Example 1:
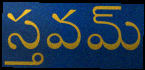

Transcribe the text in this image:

స్తవమ్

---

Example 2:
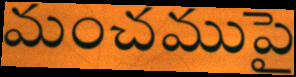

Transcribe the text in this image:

మంచముపై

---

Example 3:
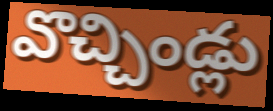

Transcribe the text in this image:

వొచ్చిండ్లు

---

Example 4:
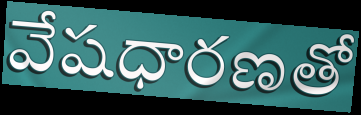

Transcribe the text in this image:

వేషధారణతో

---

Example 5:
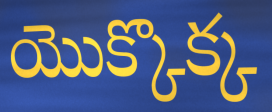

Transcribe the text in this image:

యొక్కొక్క